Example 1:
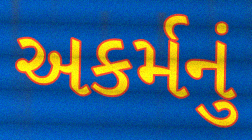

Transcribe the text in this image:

અકર્મનું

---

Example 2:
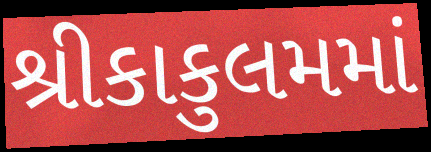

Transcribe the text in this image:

શ્રીકાકુલમમાં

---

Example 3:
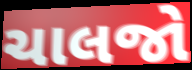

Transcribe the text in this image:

ચાલજો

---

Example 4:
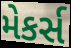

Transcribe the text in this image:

મેકર્સ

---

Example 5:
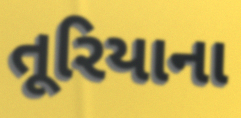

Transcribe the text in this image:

તૂરિયાના